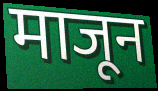
माजून